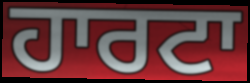
ਹਾਰਟਾ